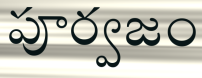
పూర్వజం